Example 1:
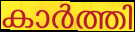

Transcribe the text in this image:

കാർത്തി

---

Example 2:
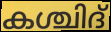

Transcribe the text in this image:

കശ്ചിദ്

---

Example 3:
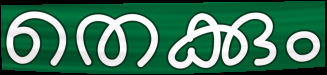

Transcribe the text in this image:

തെക്കും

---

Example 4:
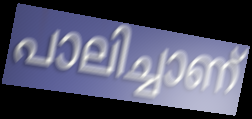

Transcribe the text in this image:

പാലിച്ചാണ്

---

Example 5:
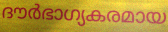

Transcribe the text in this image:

ദൗർഭാഗ്യകരമായ